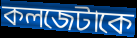
কলজেটাকে